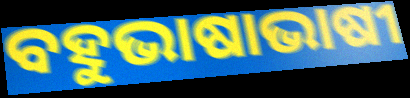
ବହୁଭାଷାଭାଷୀ